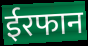
ईरफान